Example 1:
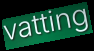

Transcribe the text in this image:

vatting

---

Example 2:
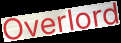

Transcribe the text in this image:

Overlord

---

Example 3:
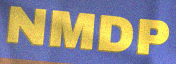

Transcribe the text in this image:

NMDP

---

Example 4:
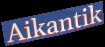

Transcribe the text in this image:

Aikantik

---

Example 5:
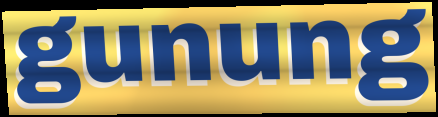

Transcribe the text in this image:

gunung